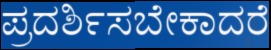
ಪ್ರದರ್ಶಿಸಬೇಕಾದರೆ